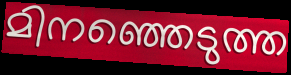
മിനഞ്ഞെടുത്ത